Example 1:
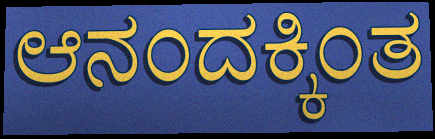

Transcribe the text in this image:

ಆನಂದಕ್ಕಿಂತ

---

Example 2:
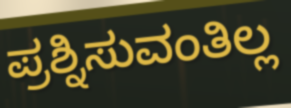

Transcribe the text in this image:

ಪ್ರಶ್ನಿಸುವಂತಿಲ್ಲ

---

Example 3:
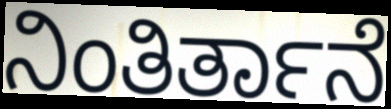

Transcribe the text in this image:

ನಿಂತಿರ್ತಾನೆ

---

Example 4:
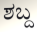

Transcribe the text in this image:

ಶಬ್ದ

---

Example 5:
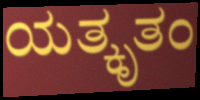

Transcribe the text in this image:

ಯತ್ಕೃತಂ